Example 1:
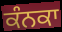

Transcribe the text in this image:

ਕੰਨਕਾ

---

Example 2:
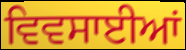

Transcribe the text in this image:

ਵਿਵਸਾਈਆਂ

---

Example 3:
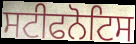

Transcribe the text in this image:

ਸਟੀਫਨੋਟਿਸ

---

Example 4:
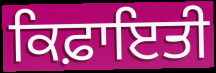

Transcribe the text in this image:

ਕਿਫ਼ਾਇਤੀ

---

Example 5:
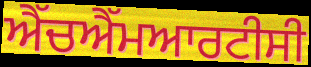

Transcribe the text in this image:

ਐੱਚਐੱਮਆਰਟੀਸੀ